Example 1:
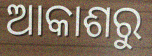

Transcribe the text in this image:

ଆକାଶରୁ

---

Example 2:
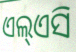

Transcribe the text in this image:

ଏଲ୍ଏସି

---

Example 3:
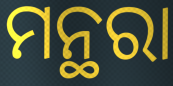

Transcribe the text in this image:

ମନ୍ଥରା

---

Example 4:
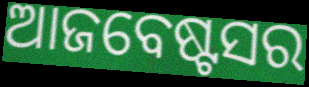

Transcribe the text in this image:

ଆଜବେଷ୍ଟସର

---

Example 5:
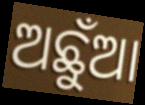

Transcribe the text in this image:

ଅଛୁଁଆ